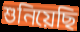
শুনিয়েছি